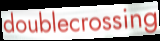
doublecrossing